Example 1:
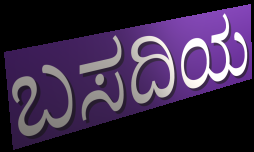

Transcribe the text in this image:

ಬಸದಿಯ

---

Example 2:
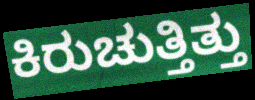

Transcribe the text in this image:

ಕಿರುಚುತ್ತಿತ್ತು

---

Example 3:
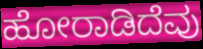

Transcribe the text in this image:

ಹೋರಾಡಿದೆವು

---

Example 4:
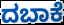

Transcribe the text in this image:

ದಬಾಕೆ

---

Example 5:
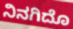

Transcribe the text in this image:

ನಿನಗಿದೊ